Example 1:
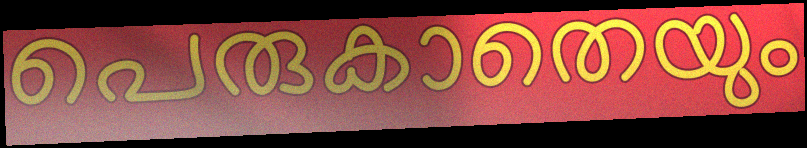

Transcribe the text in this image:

പെരുകാതെയും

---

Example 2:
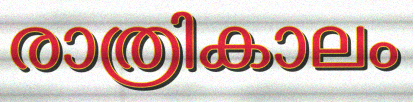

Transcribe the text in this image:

രാത്രികാലം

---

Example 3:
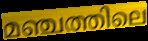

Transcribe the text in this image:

മഞ്ചത്തിലെ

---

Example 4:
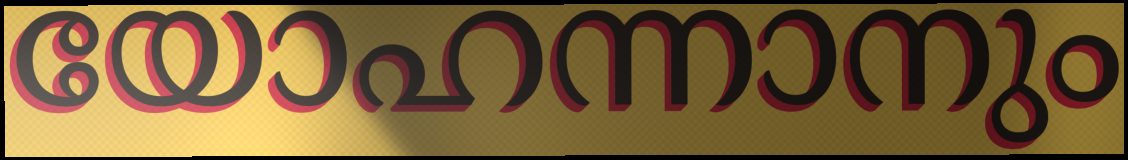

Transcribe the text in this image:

യോഹന്നാനും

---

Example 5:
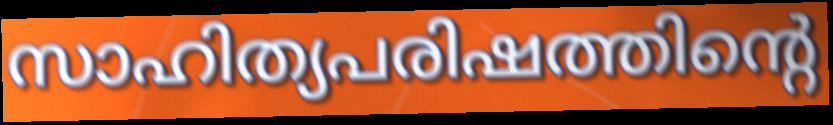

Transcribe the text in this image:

സാഹിത്യപരിഷത്തിന്റെ